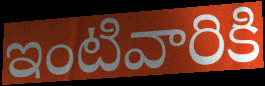
ఇంటివారికి